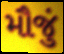
મૌજું